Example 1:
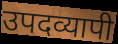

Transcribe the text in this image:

उपदव्यापी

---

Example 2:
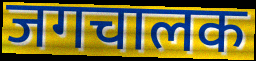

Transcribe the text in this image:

जगचालक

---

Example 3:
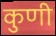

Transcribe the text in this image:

कुणी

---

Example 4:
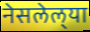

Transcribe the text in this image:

नेसलेल्या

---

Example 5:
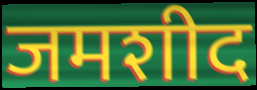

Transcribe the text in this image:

जमशीद